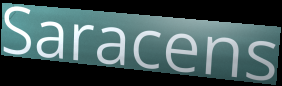
Saracens